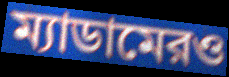
ম্যাডামেরও